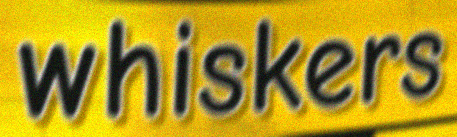
whiskers